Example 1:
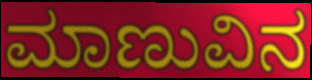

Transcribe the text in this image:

ಮಾಣುವಿನ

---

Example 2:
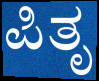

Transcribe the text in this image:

ಪಿತೃ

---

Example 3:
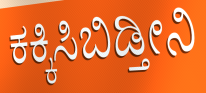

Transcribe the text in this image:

ಕಕ್ಕಿಸಿಬಿಡ್ತೀನಿ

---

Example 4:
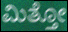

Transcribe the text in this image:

ಮಿತ್ತೋ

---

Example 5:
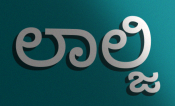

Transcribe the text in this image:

ಲಾಲ್ಜಿ